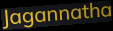
Jagannatha